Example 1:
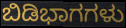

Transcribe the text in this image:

ಬಿಡಿಭಾಗಗಳು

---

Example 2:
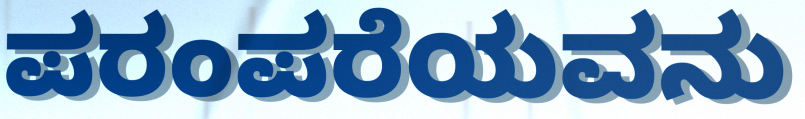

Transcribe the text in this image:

ಪರಂಪರೆಯವನು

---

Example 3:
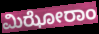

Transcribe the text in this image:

ಮಿಝೋರಾಂ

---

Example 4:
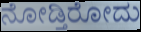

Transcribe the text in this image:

ನೋಡ್ತಿರೋದು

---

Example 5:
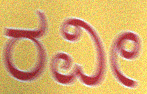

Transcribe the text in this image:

ರವೀ